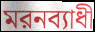
মরনব্যাধী